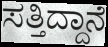
ಸತ್ತಿದ್ದಾನೆ